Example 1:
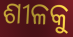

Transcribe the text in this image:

ଶୀଳକୁ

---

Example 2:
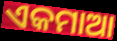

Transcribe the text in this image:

ଏକମାଆ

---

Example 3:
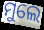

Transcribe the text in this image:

ମୁଲେ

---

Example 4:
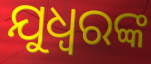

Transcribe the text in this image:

ଯୁଧ୍ଵରଙ୍କ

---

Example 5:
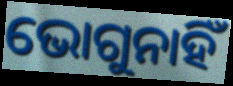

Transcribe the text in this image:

ଭୋଗୁନାହିଁ